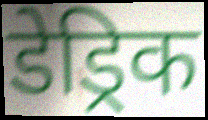
डेड्रिक